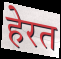
हेरत